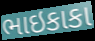
ભાઇકાકા